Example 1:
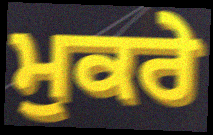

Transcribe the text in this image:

ਮੁਕਰੇ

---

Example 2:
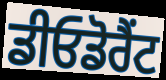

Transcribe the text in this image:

ਡੀਓਡੋਰੈਂਟ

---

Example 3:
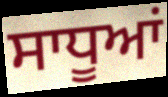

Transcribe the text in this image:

ਸਾਧੂਆਂ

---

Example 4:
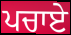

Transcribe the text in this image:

ਪਚਾਏ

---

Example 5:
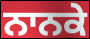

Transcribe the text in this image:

ਨਾਨਕੇ